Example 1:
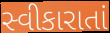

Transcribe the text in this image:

સ્વીકારાતાં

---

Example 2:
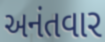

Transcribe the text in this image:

અનંતવાર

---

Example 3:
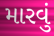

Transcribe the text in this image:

મારવું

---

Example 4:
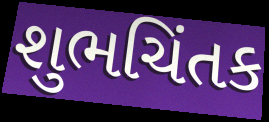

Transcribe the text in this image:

શુભચિંતક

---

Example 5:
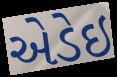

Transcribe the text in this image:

એડેઇ